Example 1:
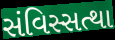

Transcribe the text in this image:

સંવિસ્સત્થા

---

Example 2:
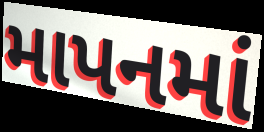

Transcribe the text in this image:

માપનમાં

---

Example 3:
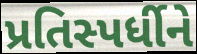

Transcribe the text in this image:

પ્રતિસ્પર્ધીને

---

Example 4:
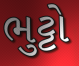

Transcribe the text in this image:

ભુટ્ટો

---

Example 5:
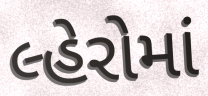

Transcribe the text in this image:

લ્હેરોમાં